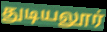
துடியலூர்